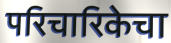
परिचारिकेचा